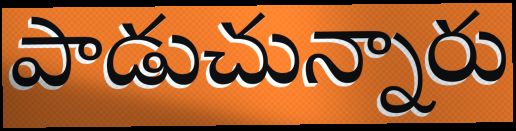
పాడుచున్నారు